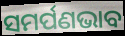
ସମର୍ପଣଭାବ